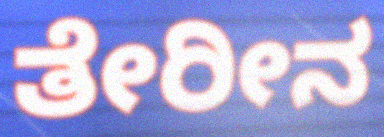
ತೇರೀನ